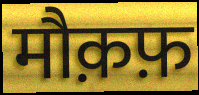
मौक़फ़